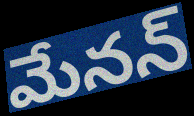
మేనన్